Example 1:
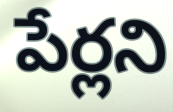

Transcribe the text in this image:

పేర్లని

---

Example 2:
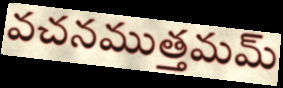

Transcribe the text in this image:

వచనముత్తమమ్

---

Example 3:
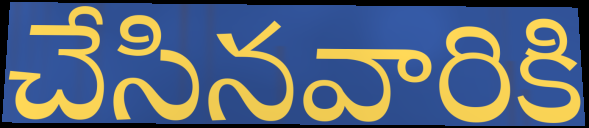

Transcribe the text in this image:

చేసినవారికి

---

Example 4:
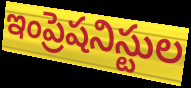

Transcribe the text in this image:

ఇంప్రెషనిస్టుల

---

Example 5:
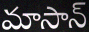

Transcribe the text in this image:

మాసాన్